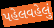
પહેલવહેલું